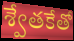
శ్వేతకేతో